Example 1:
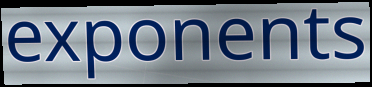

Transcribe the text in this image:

exponents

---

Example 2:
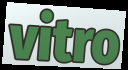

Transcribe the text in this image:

vitro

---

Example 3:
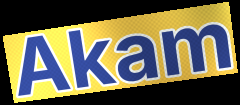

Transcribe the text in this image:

Akam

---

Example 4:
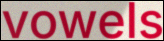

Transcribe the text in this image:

vowels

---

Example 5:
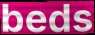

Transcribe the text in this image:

beds